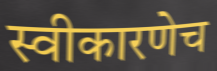
स्वीकारणेच